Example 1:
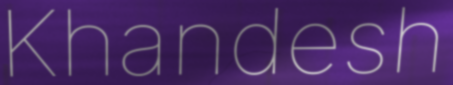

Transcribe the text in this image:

Khandesh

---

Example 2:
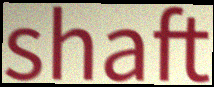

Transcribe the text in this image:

shaft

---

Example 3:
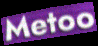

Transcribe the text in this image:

Metoo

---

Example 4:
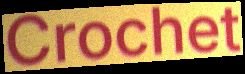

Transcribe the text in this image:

Crochet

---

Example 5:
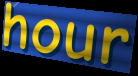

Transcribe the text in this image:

hour